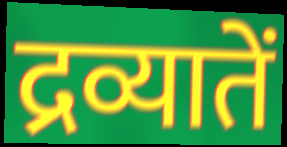
द्रव्यातें